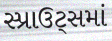
સ્પ્રાઉટ્સમાં